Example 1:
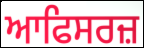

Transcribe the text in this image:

ਆਫਿਸਰਜ਼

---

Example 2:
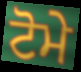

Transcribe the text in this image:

ਟੋਮੇ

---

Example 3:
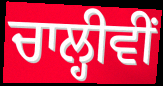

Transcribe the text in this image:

ਚਾਲ੍ਹੀਵੀਂ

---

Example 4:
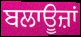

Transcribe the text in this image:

ਬਲਾਊਜ਼ਾਂ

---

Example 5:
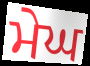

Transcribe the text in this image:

ਮੇਘ